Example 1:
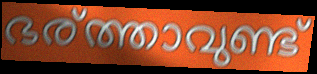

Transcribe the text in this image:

ഭര്ത്താവുണ്ട്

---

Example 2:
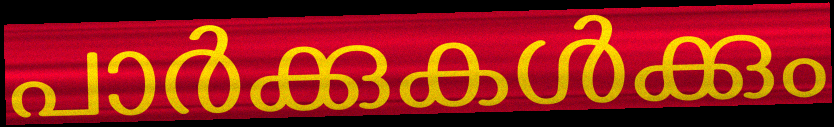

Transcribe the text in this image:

പാർക്കുകൾക്കും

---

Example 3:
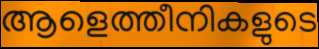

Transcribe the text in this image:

ആളെത്തീനികളുടെ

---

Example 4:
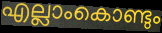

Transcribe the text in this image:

എല്ലാംകൊണ്ടും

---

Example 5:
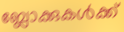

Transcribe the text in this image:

ബ്ലോക്കുകൾക്ക്